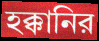
হক্কানির